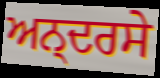
ਅਨ੍ਦਰਸੇ